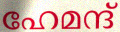
ഹേമന്ദ്